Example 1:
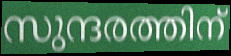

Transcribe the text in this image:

സുന്ദരത്തിന്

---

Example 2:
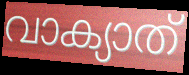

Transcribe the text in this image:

വാക്യാത്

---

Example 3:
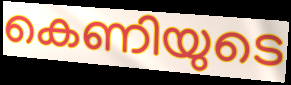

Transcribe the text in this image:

കെണിയുടെ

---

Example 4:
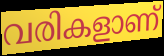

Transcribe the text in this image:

വരികളാണ്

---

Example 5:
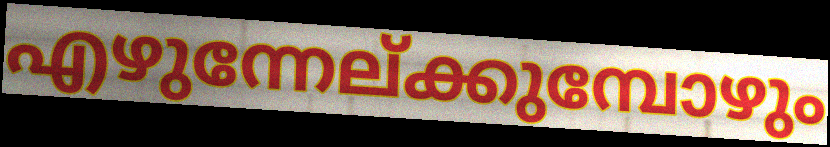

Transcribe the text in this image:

എഴുന്നേല്ക്കുമ്പോഴും